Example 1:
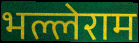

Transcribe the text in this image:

भल्लेराम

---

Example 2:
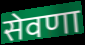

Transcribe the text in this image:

सेवणा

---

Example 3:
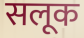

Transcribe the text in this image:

सलूक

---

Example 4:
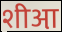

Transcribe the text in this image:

शीआ़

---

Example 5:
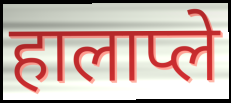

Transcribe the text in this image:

हालाप्ले